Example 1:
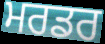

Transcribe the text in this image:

ਮਰਡਰ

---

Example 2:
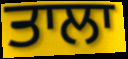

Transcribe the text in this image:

ਤਾਲਾ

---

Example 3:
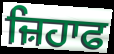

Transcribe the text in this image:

ਜ਼ਿਹਾਫ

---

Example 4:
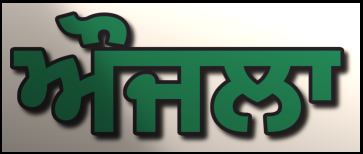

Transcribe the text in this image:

ਔਜਲਾ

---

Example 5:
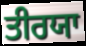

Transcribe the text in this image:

ਤੀਰਯਾ